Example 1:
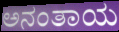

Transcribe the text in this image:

ಅನಂತಾಯ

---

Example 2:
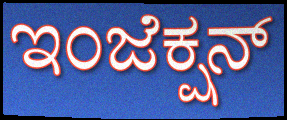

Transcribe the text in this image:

ಇಂಜೆಕ್ಷನ್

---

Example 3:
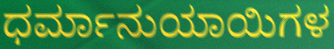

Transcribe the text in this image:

ಧರ್ಮಾನುಯಾಯಿಗಳ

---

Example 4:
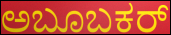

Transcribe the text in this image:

ಅಬೂಬಕರ್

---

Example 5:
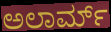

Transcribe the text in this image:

ಅಲಾರ್ಮ್